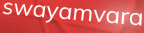
swayamvara